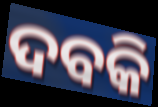
ଦବକି